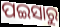
ପଇସାରୁ